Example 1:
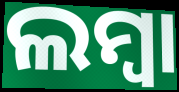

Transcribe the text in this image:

ଲମ୍ୱା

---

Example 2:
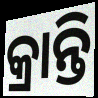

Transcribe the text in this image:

କ୍ରାନ୍ତି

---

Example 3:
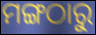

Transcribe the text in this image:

ମଙ୍ଗଠାରୁ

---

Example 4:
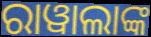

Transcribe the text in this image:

ରାୱାଲାଙ୍କ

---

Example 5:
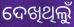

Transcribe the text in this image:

ଦେଖିଥିଲୁଁ